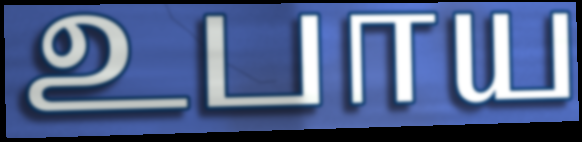
உபாய